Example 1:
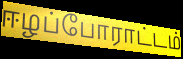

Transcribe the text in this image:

ஈழப்போராட்டம்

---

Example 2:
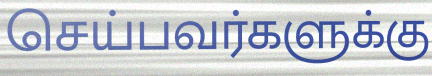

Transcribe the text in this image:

செய்பவர்களுக்கு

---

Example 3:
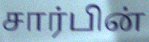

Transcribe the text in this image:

சார்பின்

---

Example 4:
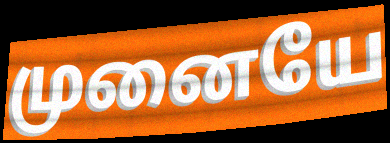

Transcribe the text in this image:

முனையே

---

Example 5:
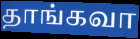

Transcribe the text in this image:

தாங்கவா